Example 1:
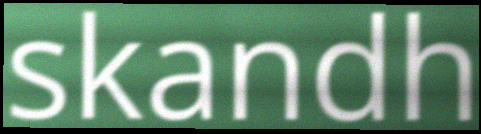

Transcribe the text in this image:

skandh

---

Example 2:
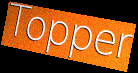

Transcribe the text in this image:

Topper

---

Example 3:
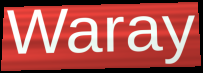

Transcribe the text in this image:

Waray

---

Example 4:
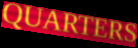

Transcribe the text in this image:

QUARTERS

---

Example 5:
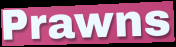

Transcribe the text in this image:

Prawns